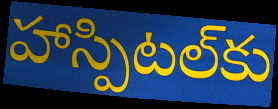
హాస్పిటల్‌కు